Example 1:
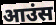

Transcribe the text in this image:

आउंस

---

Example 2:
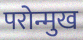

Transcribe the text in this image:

परोन्मुख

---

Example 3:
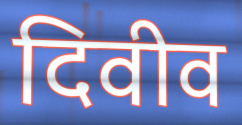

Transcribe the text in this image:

दिवीव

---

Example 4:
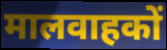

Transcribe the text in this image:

मालवाहकों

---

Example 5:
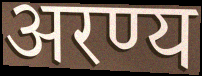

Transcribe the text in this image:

अरण्य